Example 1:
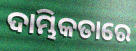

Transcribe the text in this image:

ଦାମ୍ଭିକତାରେ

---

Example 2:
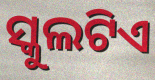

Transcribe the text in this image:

ସ୍କୁଲଟିଏ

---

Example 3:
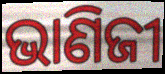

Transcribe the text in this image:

ଭାଣିଜୀ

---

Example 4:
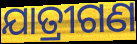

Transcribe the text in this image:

ଯାତ୍ରୀଗଣ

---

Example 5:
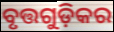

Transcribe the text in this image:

ବୃତ୍ତଗୁଡ଼ିକର